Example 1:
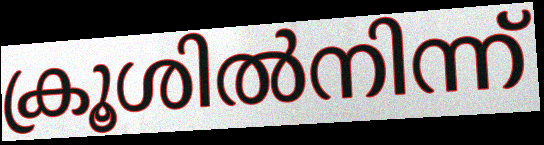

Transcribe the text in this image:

ക്രൂശിൽനിന്ന്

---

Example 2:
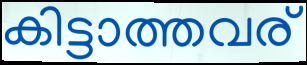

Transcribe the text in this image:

കിട്ടാത്തവര്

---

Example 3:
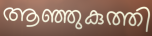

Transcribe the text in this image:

ആഞ്ഞുകുത്തി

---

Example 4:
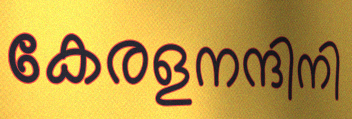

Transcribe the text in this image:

കേരളനന്ദിനി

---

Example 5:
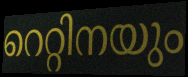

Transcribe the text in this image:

റെറ്റിനയും